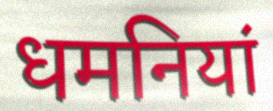
धमनियां